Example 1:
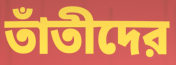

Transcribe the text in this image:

তাঁতীদের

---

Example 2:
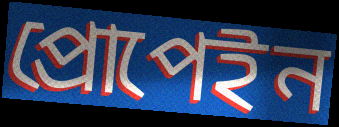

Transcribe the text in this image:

প্রোপেইন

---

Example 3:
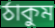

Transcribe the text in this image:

ঠাকুম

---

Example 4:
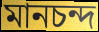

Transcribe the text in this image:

মানচন্দ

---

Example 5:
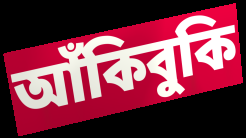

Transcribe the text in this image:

আঁকিবুকি